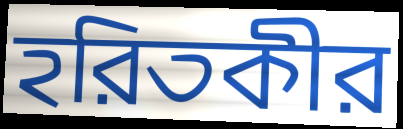
হরিতকীর